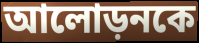
আলোড়নকে